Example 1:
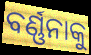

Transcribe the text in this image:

ବର୍ଣ୍ଣନାକୁ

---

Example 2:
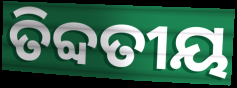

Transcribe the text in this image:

ତିବ୍ଦତୀୟ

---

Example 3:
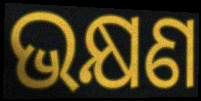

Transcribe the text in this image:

ଭକ୍ଷଣ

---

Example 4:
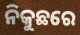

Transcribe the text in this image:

ନିକୁଛରେ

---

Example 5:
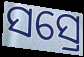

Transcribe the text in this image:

ସସ୍ରେ